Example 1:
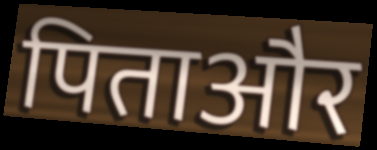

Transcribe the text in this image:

पिताऔर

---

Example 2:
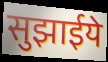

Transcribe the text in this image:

सुझाईये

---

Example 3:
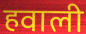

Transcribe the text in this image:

हवाली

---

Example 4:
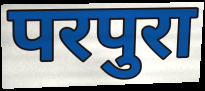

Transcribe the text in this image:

परपुरा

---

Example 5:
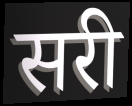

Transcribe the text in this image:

सरी